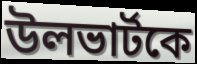
উলভার্টকে